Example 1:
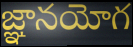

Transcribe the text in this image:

జ్ఞానయోగ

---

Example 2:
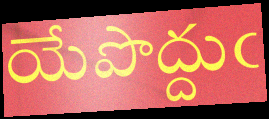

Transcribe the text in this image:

యేపొద్దుఁ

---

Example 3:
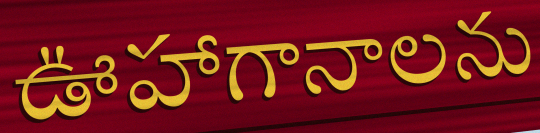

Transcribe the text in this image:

ఊహాగానాలను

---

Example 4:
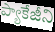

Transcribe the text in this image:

ప్యాకేజీని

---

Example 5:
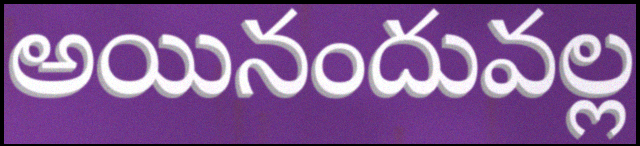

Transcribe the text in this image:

అయినందువల్ల